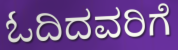
ಓದಿದವರಿಗೆ